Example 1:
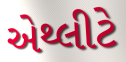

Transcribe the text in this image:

એથ્લીટે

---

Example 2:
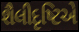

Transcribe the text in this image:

શૈલીદૃષ્ટિએ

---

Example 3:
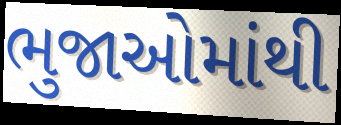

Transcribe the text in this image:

ભુજાઓમાંથી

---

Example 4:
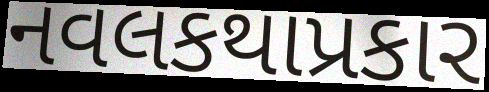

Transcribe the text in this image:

નવલકથાપ્રકાર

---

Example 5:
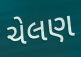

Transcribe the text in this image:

ચેલણ